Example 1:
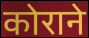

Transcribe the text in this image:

कोराने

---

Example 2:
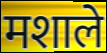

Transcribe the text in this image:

मशाले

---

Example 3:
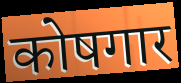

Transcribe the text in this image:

कोषगार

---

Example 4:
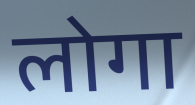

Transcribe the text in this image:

लोगा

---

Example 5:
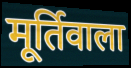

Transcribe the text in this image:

मूर्तिवाला